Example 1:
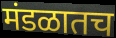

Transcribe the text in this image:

मंडळातच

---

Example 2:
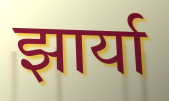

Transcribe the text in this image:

झार्या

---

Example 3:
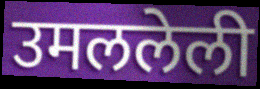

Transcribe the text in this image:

उमललेली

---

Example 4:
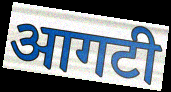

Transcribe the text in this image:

आगटी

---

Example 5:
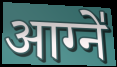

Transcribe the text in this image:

आग्ने॑